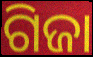
ଗିଜା